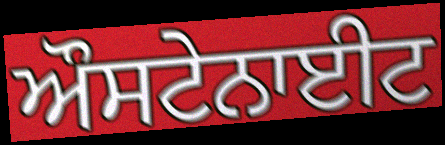
ਔਸਟੇਨਾਈਟ